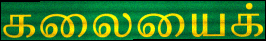
கலையைக்